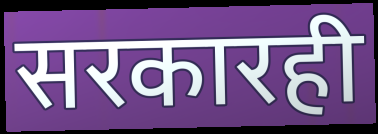
सरकारही